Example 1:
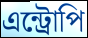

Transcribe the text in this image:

এন্ট্রোপি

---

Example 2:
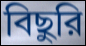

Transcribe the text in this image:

বিছুরি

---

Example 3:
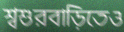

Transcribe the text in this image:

শ্বশুরবাড়িতেও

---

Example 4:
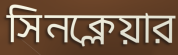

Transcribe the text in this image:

সিনক্লেয়ার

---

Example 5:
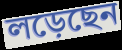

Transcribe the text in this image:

লড়েছেন